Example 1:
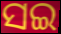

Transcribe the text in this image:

ସଇ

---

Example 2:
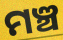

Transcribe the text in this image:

ମଞ୍ଚ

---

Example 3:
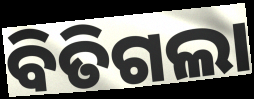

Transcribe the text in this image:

ବିତିଗଲା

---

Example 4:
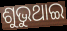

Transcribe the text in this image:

ଶୁଭୁଥାଇ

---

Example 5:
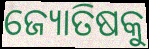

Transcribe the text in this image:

ଜ୍ୟୋତିଷକୁ